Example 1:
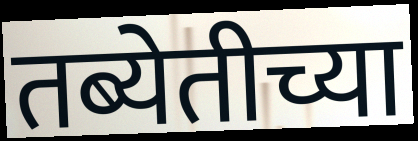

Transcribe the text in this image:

तब्येतीच्या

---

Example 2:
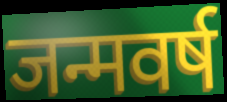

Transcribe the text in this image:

जन्मवर्ष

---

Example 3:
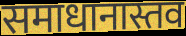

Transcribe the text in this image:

समाधानास्तव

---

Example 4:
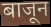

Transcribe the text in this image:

बाजून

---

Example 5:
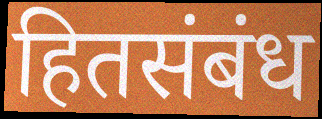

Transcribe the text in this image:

हितसंबंध